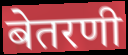
बेतरणी